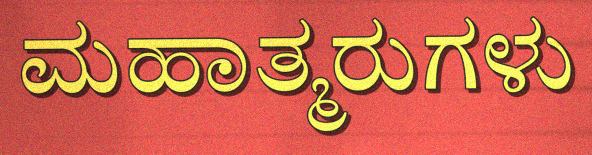
ಮಹಾತ್ಮರುಗಳು